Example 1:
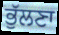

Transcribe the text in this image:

ਭੁੱਲਣਾ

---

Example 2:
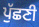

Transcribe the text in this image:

ਪੁੱਛਣੀ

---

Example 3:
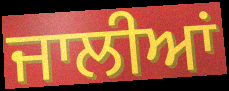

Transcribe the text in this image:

ਜਾਲੀਆਂ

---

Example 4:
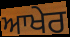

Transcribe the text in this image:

ਆਖੇਰ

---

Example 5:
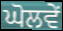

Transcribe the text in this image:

ਘੋਲਵੇਂ